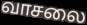
வாசலை